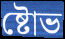
ষ্টোভ